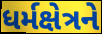
ધર્મક્ષેત્રને